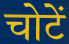
चोटें